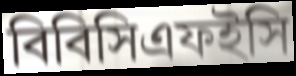
বিবিসিএফইসি